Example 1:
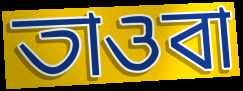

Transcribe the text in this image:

তাওবা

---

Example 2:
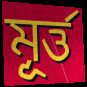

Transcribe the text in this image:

মূর্ত্ত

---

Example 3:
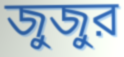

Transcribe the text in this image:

জুজুর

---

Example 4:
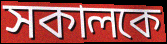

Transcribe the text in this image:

সকালকে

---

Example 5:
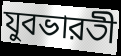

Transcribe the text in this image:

যুবভারতী